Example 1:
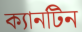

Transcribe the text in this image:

ক্যানটিন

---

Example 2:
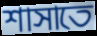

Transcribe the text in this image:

শাসাতে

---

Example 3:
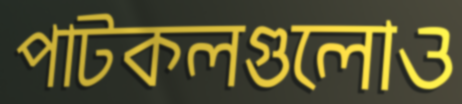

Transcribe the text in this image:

পাটকলগুলোও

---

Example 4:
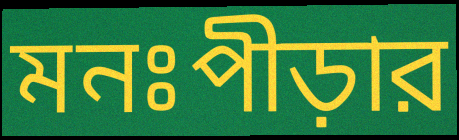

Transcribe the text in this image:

মনঃপীড়ার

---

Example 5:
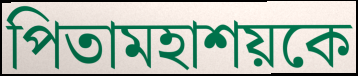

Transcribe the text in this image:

পিতামহাশয়কে